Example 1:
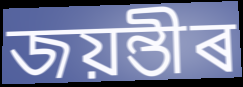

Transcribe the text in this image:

জয়ন্তীৰ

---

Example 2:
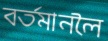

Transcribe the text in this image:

বৰ্তমানলৈ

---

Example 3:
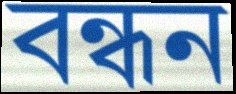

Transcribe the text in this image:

বন্ধন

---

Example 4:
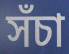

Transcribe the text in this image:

সঁচা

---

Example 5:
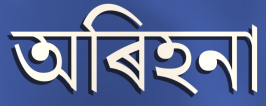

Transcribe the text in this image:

অৰিহনা